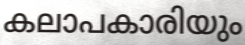
കലാപകാരിയും